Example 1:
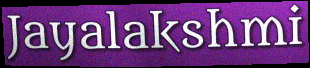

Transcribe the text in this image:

Jayalakshmi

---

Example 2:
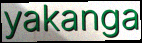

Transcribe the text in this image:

yakanga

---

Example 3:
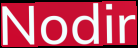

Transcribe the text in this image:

Nodir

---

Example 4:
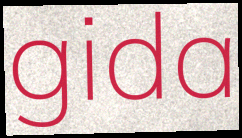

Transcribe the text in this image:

gida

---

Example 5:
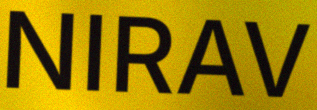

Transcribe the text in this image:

NIRAV